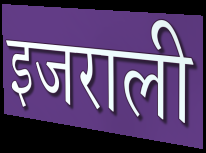
इजराली